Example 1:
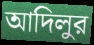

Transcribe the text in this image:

আদিলুর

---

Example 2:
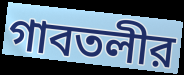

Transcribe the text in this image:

গাবতলীর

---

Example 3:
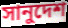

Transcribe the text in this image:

সানুদেশ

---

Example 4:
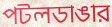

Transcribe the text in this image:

পটলডাঙার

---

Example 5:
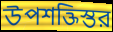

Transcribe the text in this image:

উপশক্তিস্তর